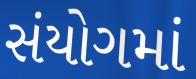
સંયોગમાં